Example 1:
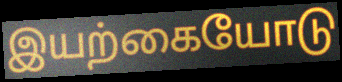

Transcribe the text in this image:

இயற்கையோடு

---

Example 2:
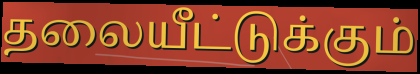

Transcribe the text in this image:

தலையீட்டுக்கும்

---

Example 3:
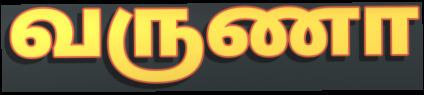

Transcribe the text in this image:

வருணா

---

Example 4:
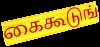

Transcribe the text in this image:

கைகூடுங்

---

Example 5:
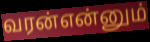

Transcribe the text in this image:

வரன்என்னும்